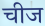
चीज